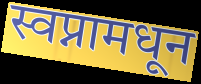
स्वप्नामधून